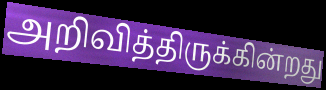
அறிவித்திருக்கின்றது